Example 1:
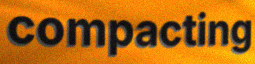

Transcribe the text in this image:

compacting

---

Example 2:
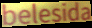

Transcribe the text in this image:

belesida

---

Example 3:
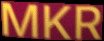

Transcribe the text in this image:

MKR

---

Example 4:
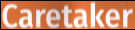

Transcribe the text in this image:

Caretaker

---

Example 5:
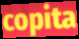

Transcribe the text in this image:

copita